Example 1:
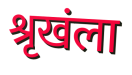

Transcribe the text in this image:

श्रृखंला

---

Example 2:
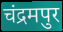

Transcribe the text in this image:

चंद्रमपुर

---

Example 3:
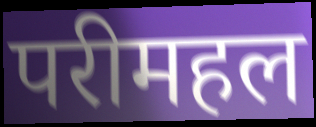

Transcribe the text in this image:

परीमहल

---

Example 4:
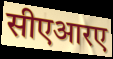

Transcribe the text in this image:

सीएआरए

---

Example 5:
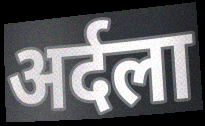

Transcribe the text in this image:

अर्दला